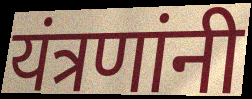
यंत्रणांनी